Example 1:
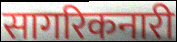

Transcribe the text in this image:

सागरिकनारी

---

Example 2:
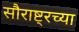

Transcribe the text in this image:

सौराष्ट्रच्या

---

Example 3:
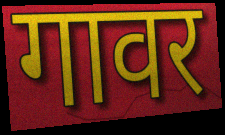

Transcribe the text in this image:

गावर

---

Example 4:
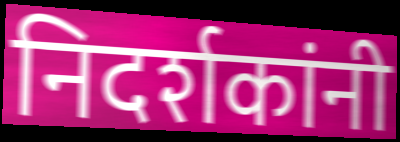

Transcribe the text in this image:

निदर्शकांनी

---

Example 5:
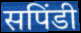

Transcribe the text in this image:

सपिंडी